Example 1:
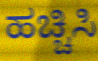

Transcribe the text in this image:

ಹಚ್ಚಿಸಿ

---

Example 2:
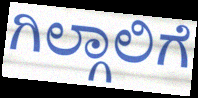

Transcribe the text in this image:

ಗಿಲ್ಗಾಲಿಗೆ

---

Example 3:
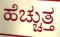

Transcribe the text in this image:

ಹೆಚ್ಚುತ್ತ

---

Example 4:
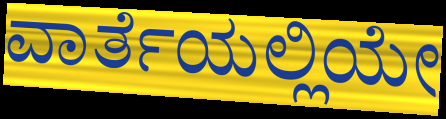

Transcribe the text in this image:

ವಾರ್ತೆಯಲ್ಲಿಯೇ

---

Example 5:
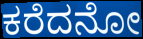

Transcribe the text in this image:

ಕರೆದನೋ